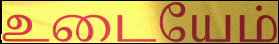
உடையேம்